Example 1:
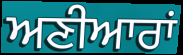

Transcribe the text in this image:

ਅਣੀਆਰਾਂ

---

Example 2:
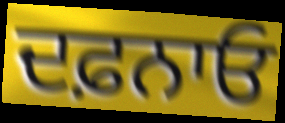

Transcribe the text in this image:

ਦਫ਼ਨਾਓ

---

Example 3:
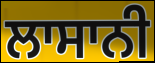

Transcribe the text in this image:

ਲਾਸਾਨੀ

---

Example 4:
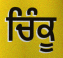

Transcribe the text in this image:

ਚਿੰਕੂ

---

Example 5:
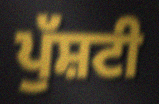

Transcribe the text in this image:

ਪੁੱਸ਼ਟੀ